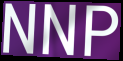
NNP